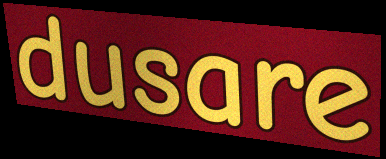
dusare